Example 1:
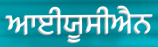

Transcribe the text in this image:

ਆਈਯੂਸੀਐਨ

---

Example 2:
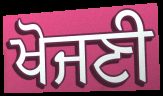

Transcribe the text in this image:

ਖੋਜਣੀ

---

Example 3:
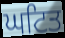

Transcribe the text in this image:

ਘਟਿਤ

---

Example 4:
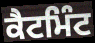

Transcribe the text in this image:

ਕੈਟਮਿੰਟ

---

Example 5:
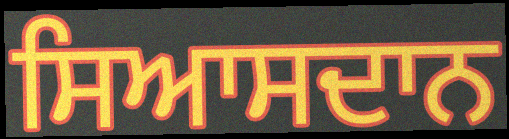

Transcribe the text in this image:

ਸਿਆਸਦਾਨ